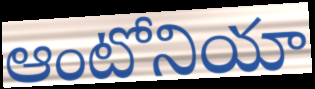
ఆంటోనియా